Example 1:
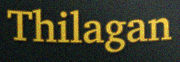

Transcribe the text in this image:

Thilagan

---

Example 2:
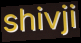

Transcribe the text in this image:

shivji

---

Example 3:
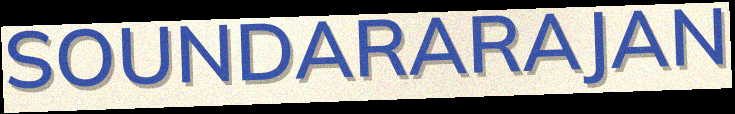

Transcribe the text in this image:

SOUNDARARAJAN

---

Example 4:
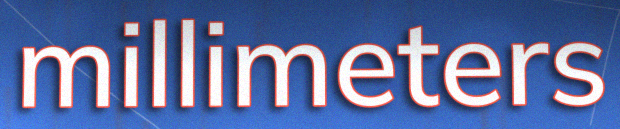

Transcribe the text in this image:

millimeters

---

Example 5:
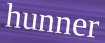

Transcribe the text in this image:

hunner